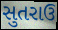
સુતરાઉ